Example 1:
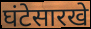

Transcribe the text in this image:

घंटेसारखे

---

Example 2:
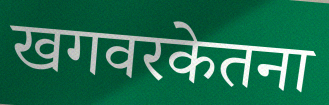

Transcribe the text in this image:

खगवरकेतना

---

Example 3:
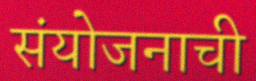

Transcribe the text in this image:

संयोजनाची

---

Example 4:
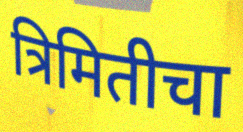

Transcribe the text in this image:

त्रिमितीचा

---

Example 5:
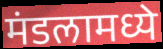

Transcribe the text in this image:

मंडलामध्ये